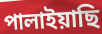
পালাইয়াছি